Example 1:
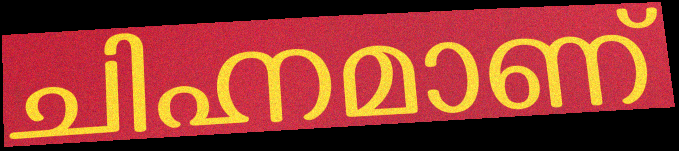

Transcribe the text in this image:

ചിഹ്നമാണ്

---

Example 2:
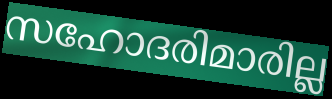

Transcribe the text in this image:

സഹോദരിമാരില്ല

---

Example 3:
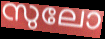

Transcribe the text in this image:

സുലോ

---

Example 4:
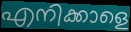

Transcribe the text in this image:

എനിക്കാളെ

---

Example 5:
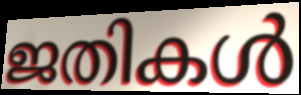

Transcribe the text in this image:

ജതികൾ